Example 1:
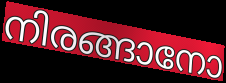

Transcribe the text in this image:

നിരങ്ങാനോ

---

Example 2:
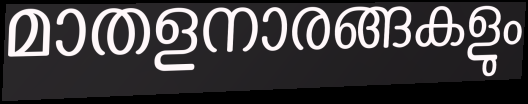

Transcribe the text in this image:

മാതളനാരങ്ങകളും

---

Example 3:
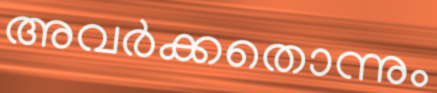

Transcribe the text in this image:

അവർക്കതൊന്നും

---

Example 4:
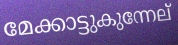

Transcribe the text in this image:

മേക്കാട്ടുകുന്നേല്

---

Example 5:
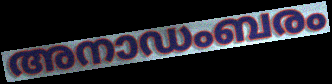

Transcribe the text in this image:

അനാഡംബരം